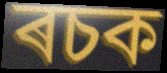
ৰচক